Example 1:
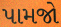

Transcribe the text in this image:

પામજો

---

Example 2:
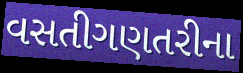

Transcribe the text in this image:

વસતીગણતરીના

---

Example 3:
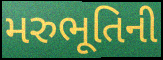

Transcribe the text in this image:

મરુભૂતિની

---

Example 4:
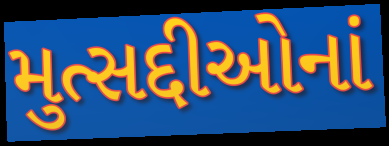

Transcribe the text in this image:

મુત્સદ્દીઓનાં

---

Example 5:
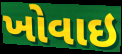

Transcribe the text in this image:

ખોવાઇ